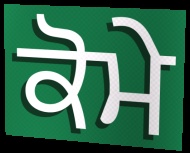
ਕੋਮੇ